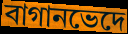
বাগানভেদে